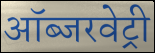
ऑब्जरवेट्री